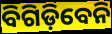
ବିଗିଡ଼ିବେନି